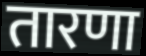
तारणा